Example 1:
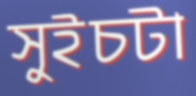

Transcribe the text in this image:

সুইচটা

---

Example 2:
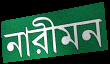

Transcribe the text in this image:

নারীমন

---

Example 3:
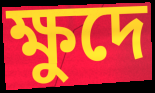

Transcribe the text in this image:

ক্ষুদে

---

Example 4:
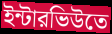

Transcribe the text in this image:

ইন্টারভিউতে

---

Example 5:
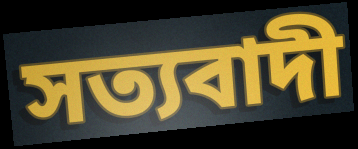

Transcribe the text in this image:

সত্যবাদী